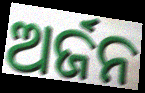
ଅର୍ଜନ